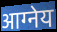
आग्नेय